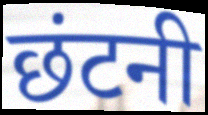
छंटनी